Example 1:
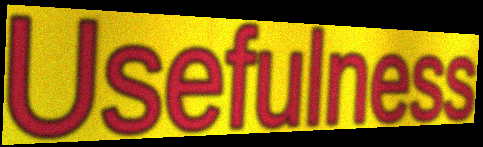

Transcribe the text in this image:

Usefulness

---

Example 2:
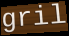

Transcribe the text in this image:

gril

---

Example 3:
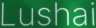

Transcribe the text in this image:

Lushai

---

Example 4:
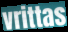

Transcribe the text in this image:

vrittas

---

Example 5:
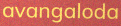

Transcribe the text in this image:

avangaloda